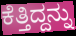
ಕೆತ್ತಿದ್ದನ್ನು